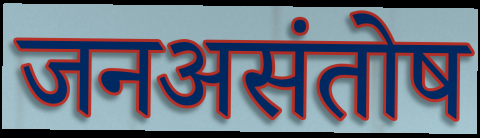
जनअसंतोष